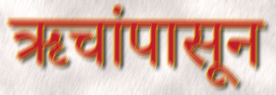
ऋचांपासून